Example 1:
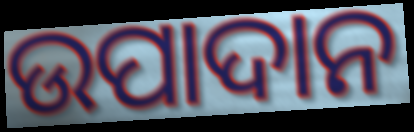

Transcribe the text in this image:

ଉପାଦାନ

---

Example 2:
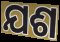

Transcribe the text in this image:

ଯଶ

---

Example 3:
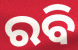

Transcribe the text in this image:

ରବି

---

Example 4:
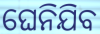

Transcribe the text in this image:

ଘେନିଯିବ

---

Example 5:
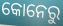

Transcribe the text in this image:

କୋନେରୁ